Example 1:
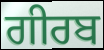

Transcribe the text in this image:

ਗੀਰਬ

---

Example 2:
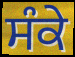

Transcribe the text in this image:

ਸੰਕੇ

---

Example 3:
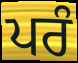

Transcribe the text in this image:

ਪਰੰ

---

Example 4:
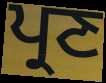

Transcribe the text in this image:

ਪ੍ਰਣ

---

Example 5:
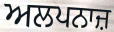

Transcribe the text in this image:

ਅਲਪਨਾਜ਼